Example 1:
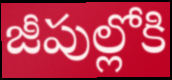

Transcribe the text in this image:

జీపుల్లోకి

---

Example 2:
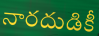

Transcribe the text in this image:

నారదుడికీ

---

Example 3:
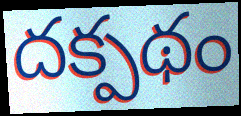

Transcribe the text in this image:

దక్పథం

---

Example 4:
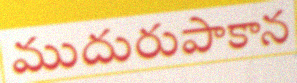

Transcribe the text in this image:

ముదురుపాకాన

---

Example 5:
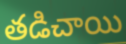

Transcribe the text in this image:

తడిచాయి